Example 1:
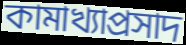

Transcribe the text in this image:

কামাখ্যাপ্রসাদ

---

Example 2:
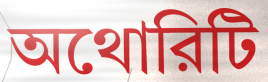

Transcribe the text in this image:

অথোরিটি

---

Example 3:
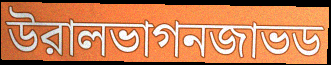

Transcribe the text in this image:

উরালভাগনজাভড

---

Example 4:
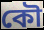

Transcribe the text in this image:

কৌ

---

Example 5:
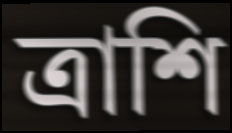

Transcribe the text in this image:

ত্রাশি